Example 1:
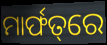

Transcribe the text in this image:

ମାର୍ଫତ୍‌ରେ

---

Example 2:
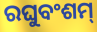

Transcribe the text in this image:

ରଘୁବଂଶମ୍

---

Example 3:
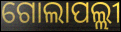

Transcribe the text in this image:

ଗୋଲାପଲ୍ଲୀ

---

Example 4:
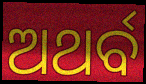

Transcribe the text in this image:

ଅଥର୍ବ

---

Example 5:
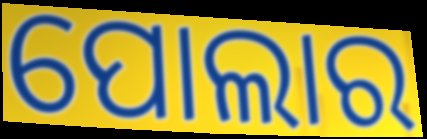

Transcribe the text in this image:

ପୋଲାର